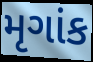
મૃગાંક